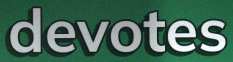
devotes